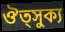
ঔত্সুক্য